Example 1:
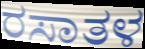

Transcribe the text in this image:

ರಸಾತಳ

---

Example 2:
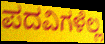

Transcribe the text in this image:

ಪದವಿಗಳೆಲ್ಲ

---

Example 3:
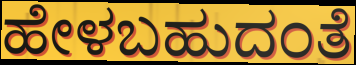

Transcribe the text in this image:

ಹೇಳಬಹುದಂತೆ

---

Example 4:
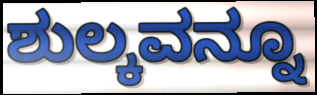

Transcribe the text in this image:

ಶುಲ್ಕವನ್ನೂ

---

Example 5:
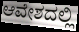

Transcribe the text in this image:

ಆವೇಶದಲ್ಲಿ